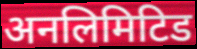
अनलिमिटिड